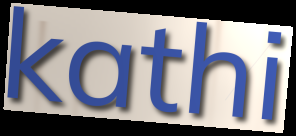
kathi